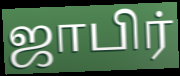
ஜாபிர்